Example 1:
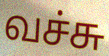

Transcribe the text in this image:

வச்சு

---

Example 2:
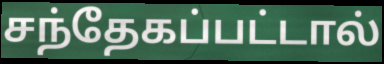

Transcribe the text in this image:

சந்தேகப்பட்டால்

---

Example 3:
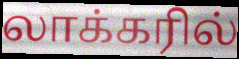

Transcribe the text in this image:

லாக்கரில்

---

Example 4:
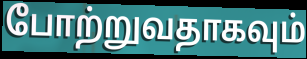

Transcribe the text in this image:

போற்றுவதாகவும்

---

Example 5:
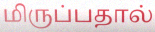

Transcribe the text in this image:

மிருப்பதால்